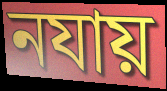
নযায়